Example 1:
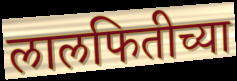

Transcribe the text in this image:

लालफितीच्या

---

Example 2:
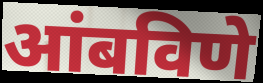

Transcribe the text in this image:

आंबविणे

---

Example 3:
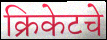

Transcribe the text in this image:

क्रिकेटचे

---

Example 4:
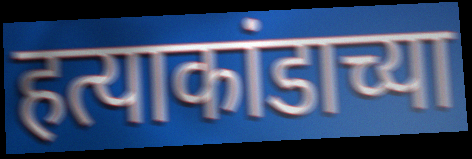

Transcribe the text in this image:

हत्याकांडाच्या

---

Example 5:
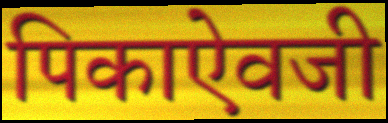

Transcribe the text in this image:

पिकाऐवजी